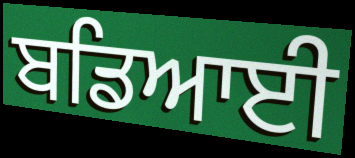
ਬਡਿਆਈ